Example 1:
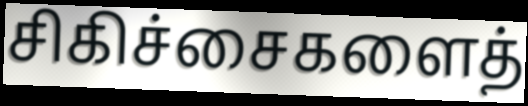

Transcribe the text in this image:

சிகிச்சைகளைத்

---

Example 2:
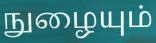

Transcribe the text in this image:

நுழையும்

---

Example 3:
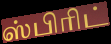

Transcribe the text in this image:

ஸ்பிரிட்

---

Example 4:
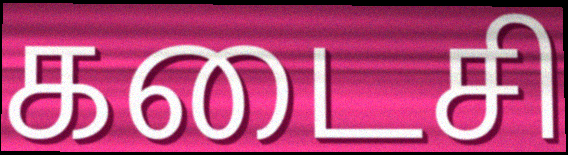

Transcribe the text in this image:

கடைசி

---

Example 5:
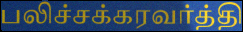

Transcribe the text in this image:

பலிச்சக்கரவர்த்தி